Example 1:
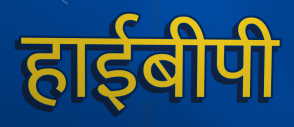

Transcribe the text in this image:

हाईबीपी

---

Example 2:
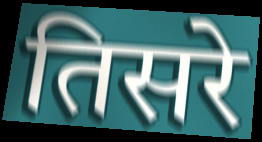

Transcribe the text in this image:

तिसरे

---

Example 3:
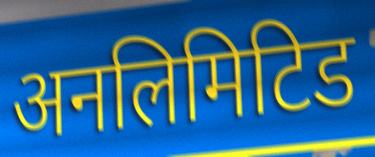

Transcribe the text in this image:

अनलिमिटिड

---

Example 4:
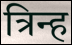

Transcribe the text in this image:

त्रिन्ह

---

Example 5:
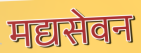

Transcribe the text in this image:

मद्यसेवन